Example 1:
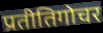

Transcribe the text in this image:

प्रतीतिगोचर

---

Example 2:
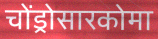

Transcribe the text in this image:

चोंड्रोसारकोमा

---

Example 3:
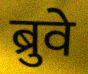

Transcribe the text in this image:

ब्रुवे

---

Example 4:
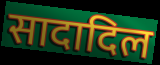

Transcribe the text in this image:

सादादिल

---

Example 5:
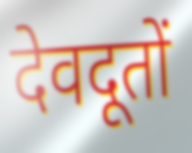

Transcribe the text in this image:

देवदूतों